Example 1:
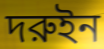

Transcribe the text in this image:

দরুইন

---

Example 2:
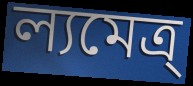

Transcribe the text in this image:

ল্যমেত্র্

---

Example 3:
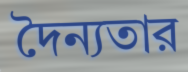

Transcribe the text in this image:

দৈন্যতার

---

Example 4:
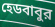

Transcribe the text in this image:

হেডবাবুর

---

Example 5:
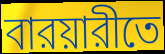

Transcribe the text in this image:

বারয়ারীতে